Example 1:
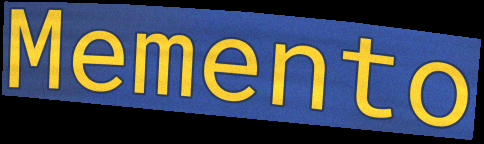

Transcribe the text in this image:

Memento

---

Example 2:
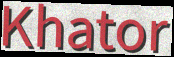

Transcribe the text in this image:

Khator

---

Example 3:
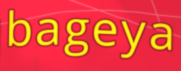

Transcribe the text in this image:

bageya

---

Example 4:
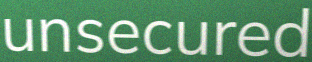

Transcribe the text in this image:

unsecured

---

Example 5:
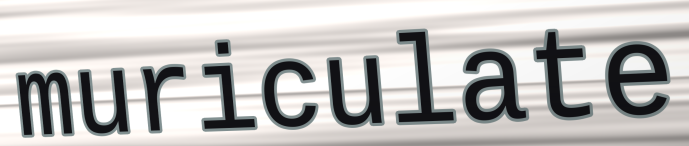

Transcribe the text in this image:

muriculate